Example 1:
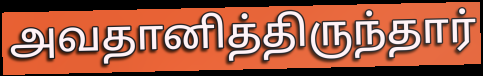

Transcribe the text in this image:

அவதானித்திருந்தார்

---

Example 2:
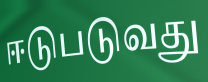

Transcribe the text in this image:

ஈடுபடுவது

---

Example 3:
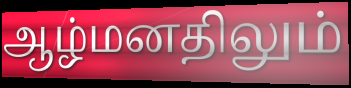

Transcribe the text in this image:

ஆழ்மனதிலும்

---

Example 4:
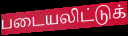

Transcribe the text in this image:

படையலிட்டுக்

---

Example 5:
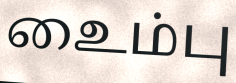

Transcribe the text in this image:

உைம்பு